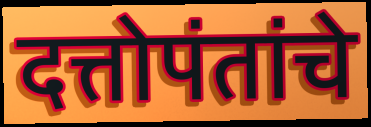
दत्तोपंतांचे